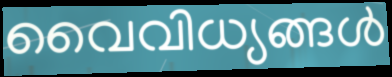
വൈവിധ്യങ്ങൾ